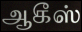
ஆகீஸ்